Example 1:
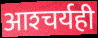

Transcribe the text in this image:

आश्‍चर्यही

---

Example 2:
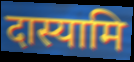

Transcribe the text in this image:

दास्यामि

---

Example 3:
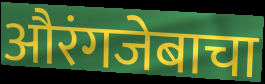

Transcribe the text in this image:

औरंगजेबाचा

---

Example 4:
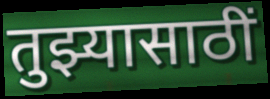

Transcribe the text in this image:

तुझ्यासाठीं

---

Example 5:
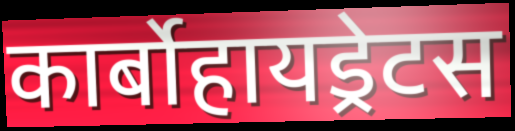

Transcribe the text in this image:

कार्बोहायड्रेटस